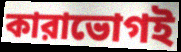
কারাভোগই